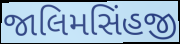
જાલિમસિંહજી